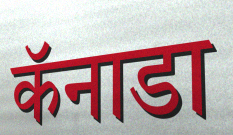
कॅनाडा